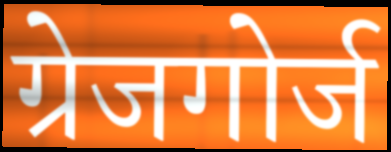
ग्रेजगोर्ज